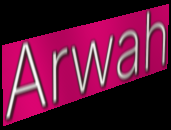
Arwah